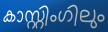
കാസ്റ്റിംഗിലും